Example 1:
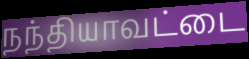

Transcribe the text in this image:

நந்தியாவட்டை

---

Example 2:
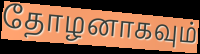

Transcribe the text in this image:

தோழனாகவும்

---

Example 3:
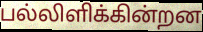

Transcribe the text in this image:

பல்லிளிக்கின்றன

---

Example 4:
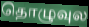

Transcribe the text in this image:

தொழுவுல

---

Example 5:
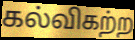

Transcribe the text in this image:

கல்விகற்ற